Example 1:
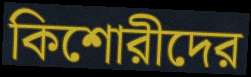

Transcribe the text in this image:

কিশোরীদের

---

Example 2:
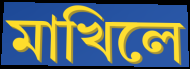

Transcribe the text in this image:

মাখিলে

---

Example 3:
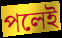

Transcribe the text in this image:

পলেই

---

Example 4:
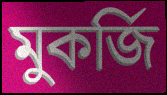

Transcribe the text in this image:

মুকর্জি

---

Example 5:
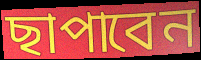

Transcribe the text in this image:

ছাপাবেন